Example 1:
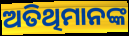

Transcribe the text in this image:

ଅତିଥିମାନଙ୍କ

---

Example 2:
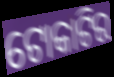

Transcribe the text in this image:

ଟୋକାଟିର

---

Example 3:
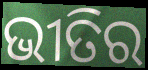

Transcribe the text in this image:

ଭୀତିର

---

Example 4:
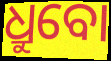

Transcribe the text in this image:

ଧ୍ରୁବୋ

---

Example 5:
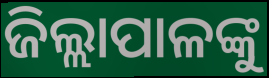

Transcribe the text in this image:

ଜିଲ୍ଲାପାଳଙ୍କୁ